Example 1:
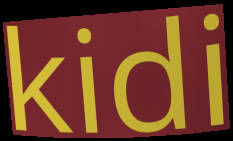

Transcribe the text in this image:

kidi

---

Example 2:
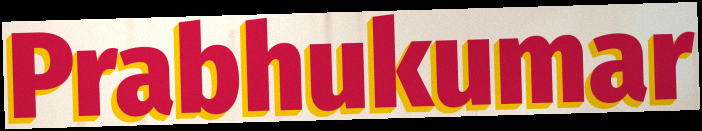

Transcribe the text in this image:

Prabhukumar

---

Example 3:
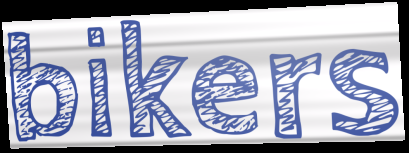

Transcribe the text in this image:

bikers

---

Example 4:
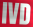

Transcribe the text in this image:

IVD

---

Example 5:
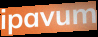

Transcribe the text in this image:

ipavum